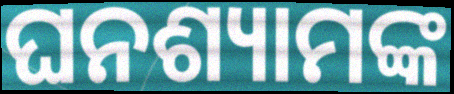
ଘନଶ୍ୟାମଙ୍କ